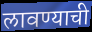
लावण्याची